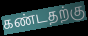
கண்டதற்கு